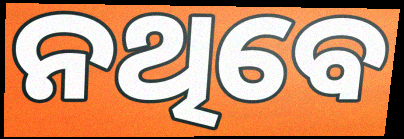
ନଥିବେ